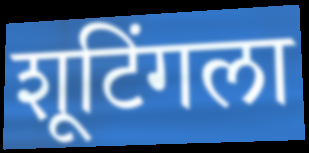
शूटिंगला